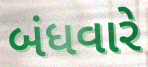
બંધવારે